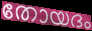
തോയദം